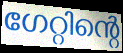
ഗേറ്റിന്റെ